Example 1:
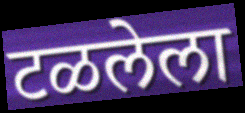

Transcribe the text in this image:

टळलेला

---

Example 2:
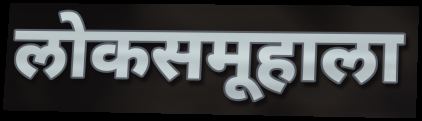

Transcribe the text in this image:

लोकसमूहाला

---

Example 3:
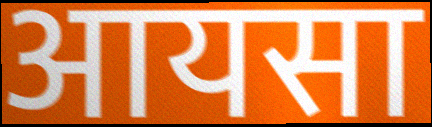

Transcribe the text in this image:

आयसा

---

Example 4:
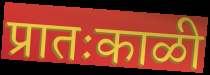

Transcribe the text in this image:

प्रातःकाळी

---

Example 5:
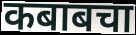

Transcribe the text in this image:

कबाबचा